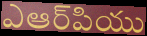
ఎఆర్‌పియు